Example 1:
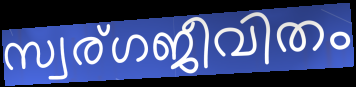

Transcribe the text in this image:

സ്വര്ഗജീവിതം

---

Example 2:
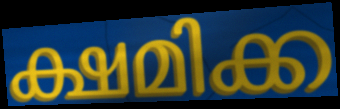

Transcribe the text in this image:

ക്ഷമിക്ക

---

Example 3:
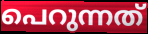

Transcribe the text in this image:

പെറുന്നത്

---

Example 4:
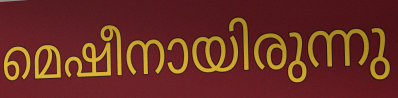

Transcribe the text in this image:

മെഷീനായിരുന്നു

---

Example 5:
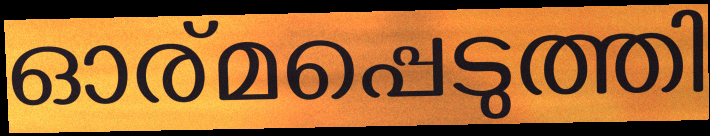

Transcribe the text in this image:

ഓര്മപ്പെടുത്തി